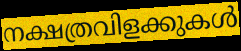
നക്ഷത്രവിളക്കുകൾ